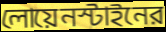
লোয়েনস্টাইনের